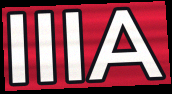
IIIA